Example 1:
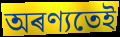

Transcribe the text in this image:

অৰণ্যতেই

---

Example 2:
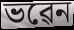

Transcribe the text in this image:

ভৱেন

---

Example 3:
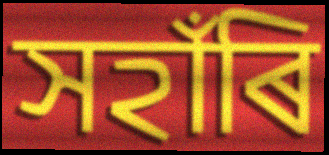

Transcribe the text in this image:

সহাঁৰি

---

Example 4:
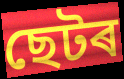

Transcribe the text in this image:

ছেটৰ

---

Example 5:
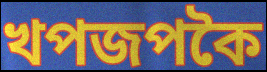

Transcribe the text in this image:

খপজপকৈ